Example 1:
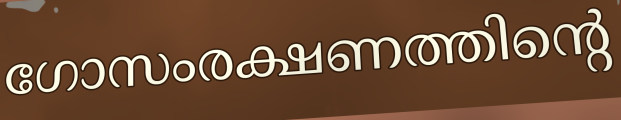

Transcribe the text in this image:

ഗോസംരക്ഷണത്തിന്റെ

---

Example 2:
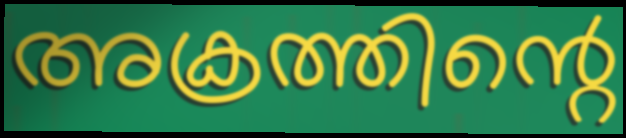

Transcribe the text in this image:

അക്രത്തിന്റെ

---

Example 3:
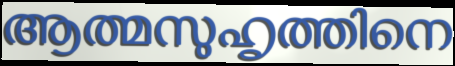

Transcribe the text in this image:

ആത്മസുഹൃത്തിനെ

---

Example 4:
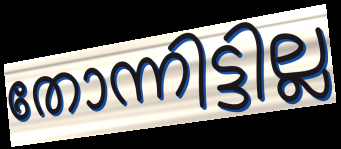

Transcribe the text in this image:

തോന്നിട്ടില്ല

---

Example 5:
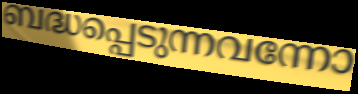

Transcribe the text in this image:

ബദ്ധപ്പെടുന്നവന്നോ